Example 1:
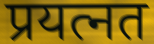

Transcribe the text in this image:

प्रयत्नत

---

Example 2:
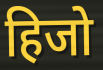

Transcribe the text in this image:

हिजो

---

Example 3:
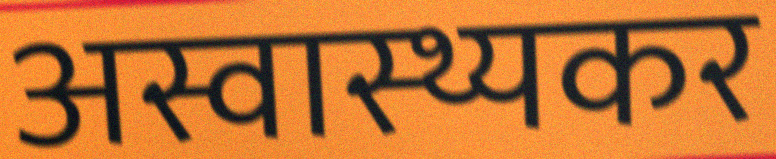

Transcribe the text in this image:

अस्वास्थ्यकर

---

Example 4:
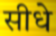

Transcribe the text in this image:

सीधे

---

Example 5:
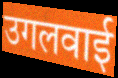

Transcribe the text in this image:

उगलवाई